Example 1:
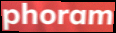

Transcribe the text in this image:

phoram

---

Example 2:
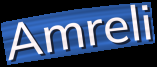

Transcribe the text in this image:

Amreli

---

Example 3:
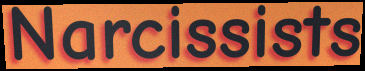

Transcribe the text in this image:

Narcissists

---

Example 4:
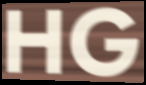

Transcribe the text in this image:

HG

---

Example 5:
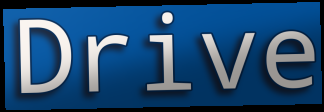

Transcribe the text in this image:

Drive